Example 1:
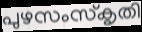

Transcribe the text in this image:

പുഴസംസ്കൃതി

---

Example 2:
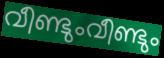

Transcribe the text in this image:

വീണ്ടുംവീണ്ടും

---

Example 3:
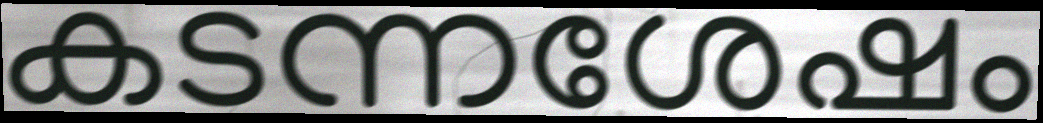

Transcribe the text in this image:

കടന്നശേഷം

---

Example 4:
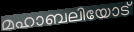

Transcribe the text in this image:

മഹാബലിയോട്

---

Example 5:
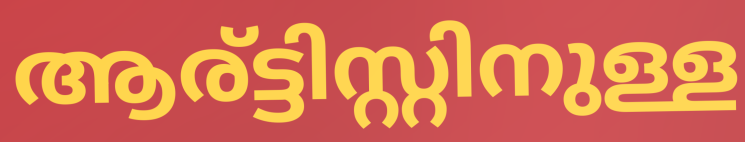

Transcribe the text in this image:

ആര്ട്ടിസ്റ്റിനുള്ള